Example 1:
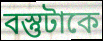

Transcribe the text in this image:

বস্তুটাকে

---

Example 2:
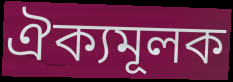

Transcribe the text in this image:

ঐক্যমূলক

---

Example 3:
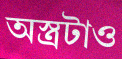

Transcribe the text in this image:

অস্ত্রটাও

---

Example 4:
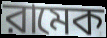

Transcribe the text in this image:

রামেক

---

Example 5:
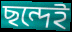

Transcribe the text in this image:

ছন্দেই